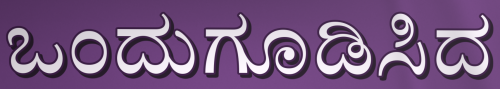
ಒಂದುಗೂಡಿಸಿದ